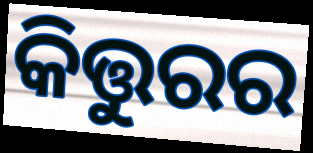
କିତ୍ତୁରର